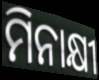
ମିନାକ୍ଷୀ